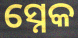
ସ୍ନେକ